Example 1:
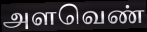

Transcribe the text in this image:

அளவெண்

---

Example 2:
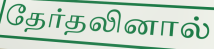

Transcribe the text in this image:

தேர்தலினால்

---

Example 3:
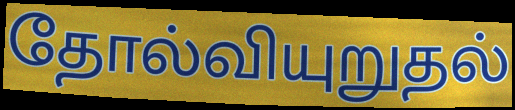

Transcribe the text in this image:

தோல்வியுறுதல்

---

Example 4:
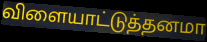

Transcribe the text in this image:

விளையாட்டுத்தனமா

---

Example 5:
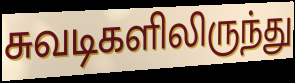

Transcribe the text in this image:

சுவடிகளிலிருந்து